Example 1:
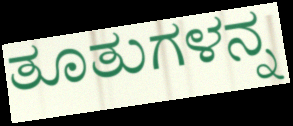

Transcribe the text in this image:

ತೂತುಗಳನ್ನ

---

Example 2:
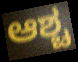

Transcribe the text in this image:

ಆಶ್ಚ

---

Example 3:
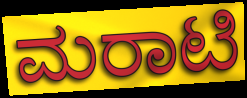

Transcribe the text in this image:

ಮರಾಟಿ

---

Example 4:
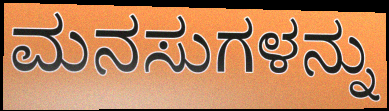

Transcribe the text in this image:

ಮನಸುಗಳನ್ನು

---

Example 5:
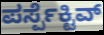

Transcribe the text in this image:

ಪರ್ಸ್ಪೆಕ್ಟಿವ್